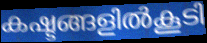
കഷ്ടങ്ങളിൽകൂടി